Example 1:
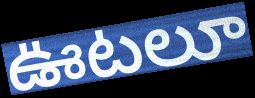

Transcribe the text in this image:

ఊటలూ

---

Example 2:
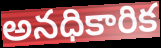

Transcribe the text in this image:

అనధికారిక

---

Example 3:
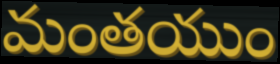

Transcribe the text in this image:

మంతయుం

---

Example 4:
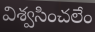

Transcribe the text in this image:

విశ్వసించలేం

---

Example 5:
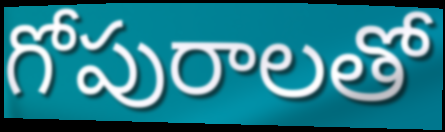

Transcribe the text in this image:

గోపురాలతో